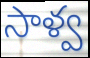
సాళ్వ